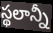
స్థలాన్నీ